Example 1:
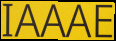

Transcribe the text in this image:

IAAAE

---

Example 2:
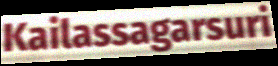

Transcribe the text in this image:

Kailassagarsuri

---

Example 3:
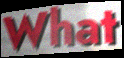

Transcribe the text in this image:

What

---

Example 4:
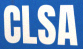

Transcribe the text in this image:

CLSA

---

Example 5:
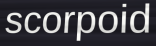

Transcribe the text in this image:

scorpoid